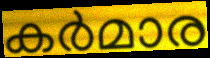
കർമാര